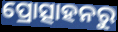
ପ୍ରୋତ୍ସାହନରୁ